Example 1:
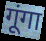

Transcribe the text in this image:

गूंगा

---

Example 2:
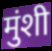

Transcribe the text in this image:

मुंशी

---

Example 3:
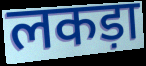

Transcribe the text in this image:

लकड़ा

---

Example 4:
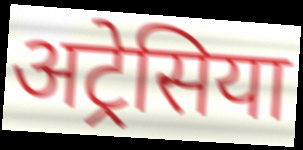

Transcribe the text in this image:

अट्रेसिया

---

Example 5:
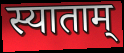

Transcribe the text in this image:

स्याताम्